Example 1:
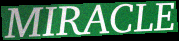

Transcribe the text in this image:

MIRACLE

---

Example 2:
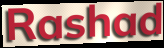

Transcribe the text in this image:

Rashad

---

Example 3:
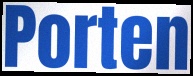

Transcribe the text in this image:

Porten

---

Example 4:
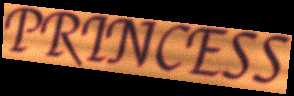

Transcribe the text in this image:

PRINCESS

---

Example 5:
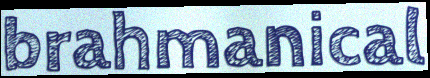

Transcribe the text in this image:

brahmanical